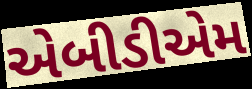
એબીડીએમ